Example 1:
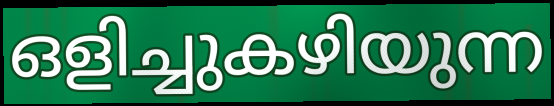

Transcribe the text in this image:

ഒളിച്ചുകഴിയുന്ന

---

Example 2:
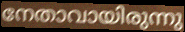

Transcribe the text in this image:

നേതാവായിരുന്നു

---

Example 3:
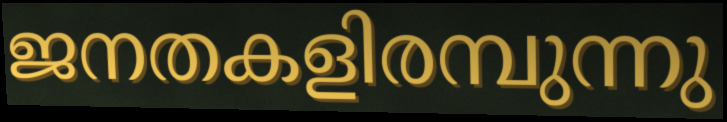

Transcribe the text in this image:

ജനതകളിരമ്പുന്നു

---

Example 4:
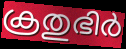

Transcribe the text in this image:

ക്രതുഭിർ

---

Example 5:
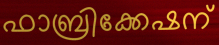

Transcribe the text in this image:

ഫാബ്രിക്കേഷന്